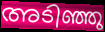
അടിഞ്ഞു